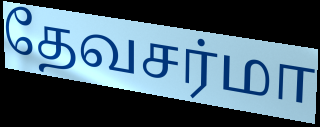
தேவசர்மா